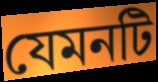
যেমনটি